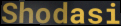
Shodasi